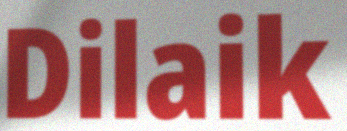
Dilaik